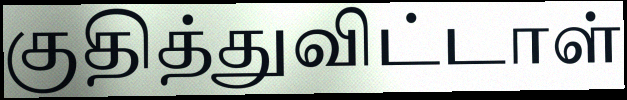
குதித்துவிட்டாள்